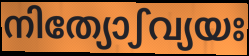
നിത്യോഽവ്യയഃ